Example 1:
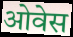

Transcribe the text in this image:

ओवेस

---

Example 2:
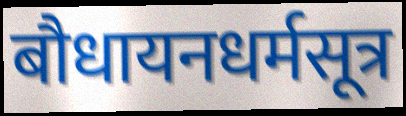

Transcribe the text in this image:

बौधायनधर्मसूत्र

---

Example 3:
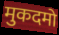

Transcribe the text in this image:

मुकदमो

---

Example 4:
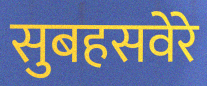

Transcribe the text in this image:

सुबहसवेरे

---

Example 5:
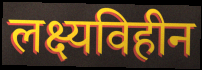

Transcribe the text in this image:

लक्ष्यविहीन